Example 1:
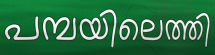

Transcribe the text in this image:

പമ്പയിലെത്തി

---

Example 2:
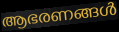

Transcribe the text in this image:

ആഭരണങ്ങൾ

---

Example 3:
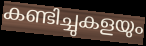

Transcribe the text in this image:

കണ്ടിച്ചുകളയും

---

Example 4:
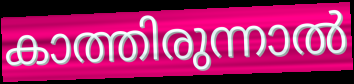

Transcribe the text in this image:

കാത്തിരുന്നാൽ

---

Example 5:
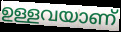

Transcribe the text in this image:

ഉള്ളവയാണ്